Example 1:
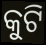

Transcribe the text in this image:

କୁଟି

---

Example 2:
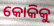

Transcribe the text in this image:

କୋକିକୁ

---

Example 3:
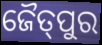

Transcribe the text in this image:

ଜୈତ୍‌ପୁର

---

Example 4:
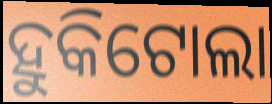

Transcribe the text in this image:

ହୁକିଟୋଲା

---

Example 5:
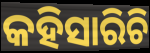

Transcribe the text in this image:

କହିସାରିଚି